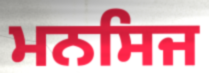
ਮਨਸਿਜ